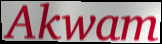
Akwam